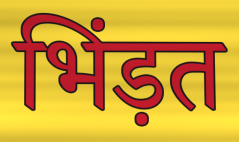
भिंड़त